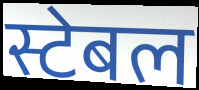
स्‍टेबल